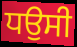
ਧਉਸੀ